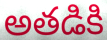
అతడికి